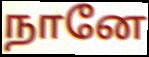
நானே